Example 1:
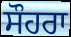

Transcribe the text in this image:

ਸੌਹਰਾ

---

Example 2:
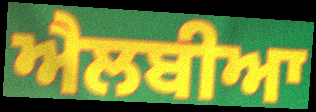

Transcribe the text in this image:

ਐਲਬੀਆ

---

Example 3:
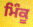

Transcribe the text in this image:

ਮਿੰਕੂ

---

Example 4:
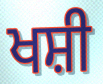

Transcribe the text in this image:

ਖਸ਼ੀ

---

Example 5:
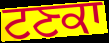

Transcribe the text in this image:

ਟਣਕਾ